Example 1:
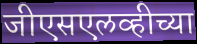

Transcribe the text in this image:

जीएसएलव्हीच्या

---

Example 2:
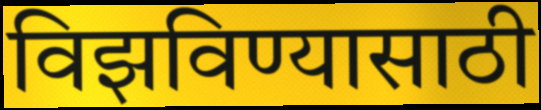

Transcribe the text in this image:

विझविण्यासाठी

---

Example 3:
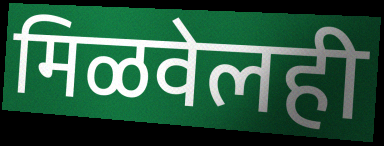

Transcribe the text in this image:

मिळवेलही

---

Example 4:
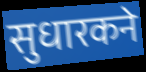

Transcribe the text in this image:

सुधारकने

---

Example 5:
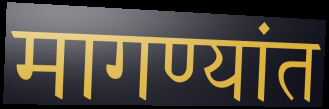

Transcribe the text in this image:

मागण्यांत